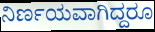
ನಿರ್ಣಯವಾಗಿದ್ದರೂ